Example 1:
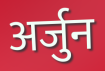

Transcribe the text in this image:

अर्जुन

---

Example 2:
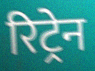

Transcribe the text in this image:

रिट्रेन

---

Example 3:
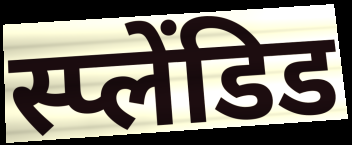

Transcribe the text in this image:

स्प्लेंडिड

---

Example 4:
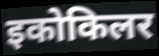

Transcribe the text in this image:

इकोकिलर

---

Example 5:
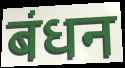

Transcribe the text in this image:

बंधन